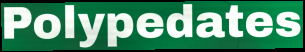
Polypedates